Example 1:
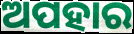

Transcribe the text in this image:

ଅପହାର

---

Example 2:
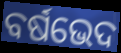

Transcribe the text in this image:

ବର୍ଷଭେଦ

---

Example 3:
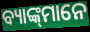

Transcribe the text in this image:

ବ୍ୟାଙ୍କ୍‌ମାନେ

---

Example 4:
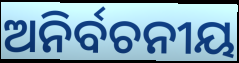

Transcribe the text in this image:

ଅନିର୍ବଚନୀୟ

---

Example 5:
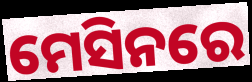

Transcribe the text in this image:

ମେସିନରେ